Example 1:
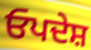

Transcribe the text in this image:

ਓਪਦੇਸ਼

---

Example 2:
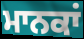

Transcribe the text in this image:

ਮਾਨਕਾਂ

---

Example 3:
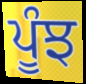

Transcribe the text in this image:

ਪੂੰਝ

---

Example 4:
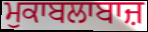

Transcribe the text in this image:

ਮੁਕਾਬਲਾਬਾਜ਼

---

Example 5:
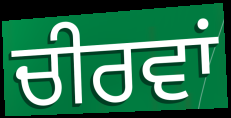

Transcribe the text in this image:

ਚੀਰਵਾਂ